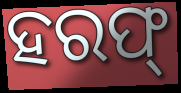
ହରଫ୍